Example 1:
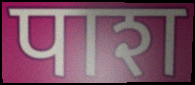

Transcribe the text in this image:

पाश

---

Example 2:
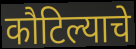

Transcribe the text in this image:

कौटिल्याचे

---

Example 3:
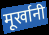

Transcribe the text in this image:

मूर्खानी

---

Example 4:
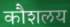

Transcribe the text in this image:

कौशलय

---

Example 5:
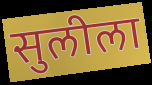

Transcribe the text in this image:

सुलीला